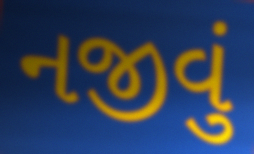
નજીવું